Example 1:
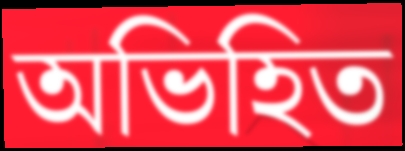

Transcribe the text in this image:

অভিহিত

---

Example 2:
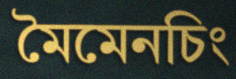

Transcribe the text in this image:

মৈমেনচিং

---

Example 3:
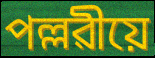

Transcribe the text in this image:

পল্লৱীয়ে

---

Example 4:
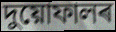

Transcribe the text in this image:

দুয়োফালৰ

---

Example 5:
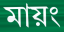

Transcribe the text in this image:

মায়ং